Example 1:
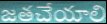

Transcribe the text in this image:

జతచేయాలి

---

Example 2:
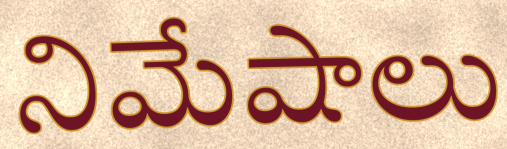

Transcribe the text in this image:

నిమేషాలు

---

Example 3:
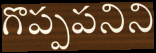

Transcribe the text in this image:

గొప్పపనిని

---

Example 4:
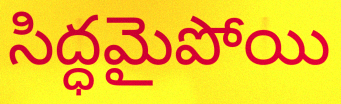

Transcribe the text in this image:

సిద్ధమైపోయి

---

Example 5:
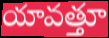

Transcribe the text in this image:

యావత్తూ